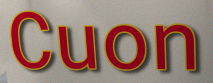
Cuon